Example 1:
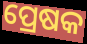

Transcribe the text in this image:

ପ୍ରେଷକ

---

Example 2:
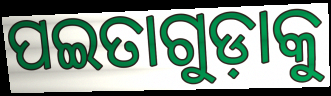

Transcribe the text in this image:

ପଇତାଗୁଡ଼ାକୁ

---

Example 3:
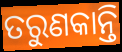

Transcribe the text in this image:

ତରୁଣକାନ୍ତି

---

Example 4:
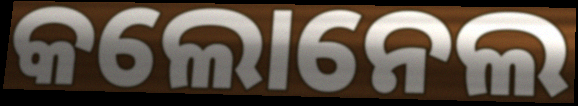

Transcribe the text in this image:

କଲୋନେଲ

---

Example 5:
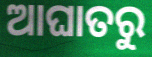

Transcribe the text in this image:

ଆଘାତରୁ